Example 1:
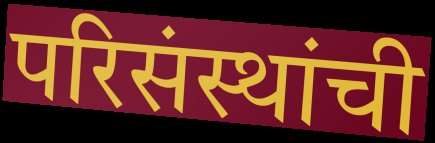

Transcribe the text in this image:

परिसंस्थांची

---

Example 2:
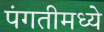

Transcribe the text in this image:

पंगतीमध्ये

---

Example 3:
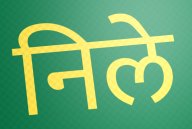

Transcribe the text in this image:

निले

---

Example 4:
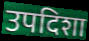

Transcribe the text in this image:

उपदिशा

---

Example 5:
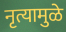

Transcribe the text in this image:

नृत्यामुळे